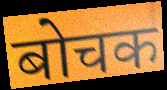
बोचक